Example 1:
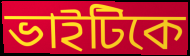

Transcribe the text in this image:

ভাইটিকে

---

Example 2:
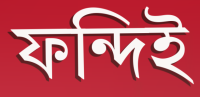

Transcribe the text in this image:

ফন্দিই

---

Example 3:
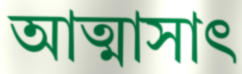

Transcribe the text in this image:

আত্মাসাৎ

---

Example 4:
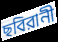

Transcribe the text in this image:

ছবিরানী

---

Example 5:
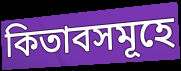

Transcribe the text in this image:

কিতাবসমূহে